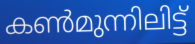
കൺമുന്നിലിട്ട്